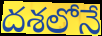
దశలోనే